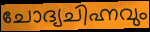
ചോദ്യചിഹ്നവും